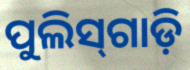
ପୁଲିସ୍‌ଗାଡ଼ି